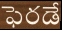
ఫెరడే